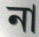
না